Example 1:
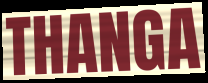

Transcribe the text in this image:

THANGA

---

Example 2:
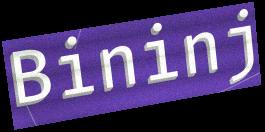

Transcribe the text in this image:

Bininj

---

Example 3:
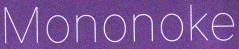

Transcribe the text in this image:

Mononoke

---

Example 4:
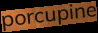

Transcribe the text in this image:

porcupine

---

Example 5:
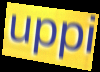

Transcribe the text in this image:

uppi